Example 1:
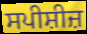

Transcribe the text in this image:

ਸਪੀਸ਼ੀਜ਼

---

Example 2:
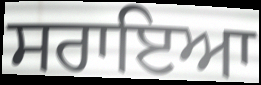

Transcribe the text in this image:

ਸਰਾਇਆ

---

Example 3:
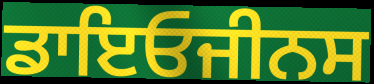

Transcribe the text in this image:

ਡਾਇਓਜੀਨਸ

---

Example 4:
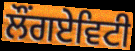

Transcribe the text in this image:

ਲੌਂਗਏਵਿਟੀ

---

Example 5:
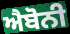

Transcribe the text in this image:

ਐਬੋਨੀ